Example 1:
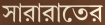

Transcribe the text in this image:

সারারাতের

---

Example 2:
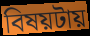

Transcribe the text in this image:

বিষয়টায়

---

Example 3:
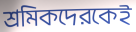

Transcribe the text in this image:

শ্রমিকদেরকেই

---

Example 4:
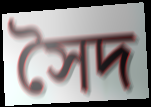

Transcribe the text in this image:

সৈদ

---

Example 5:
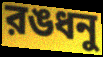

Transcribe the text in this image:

রঙধনু